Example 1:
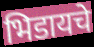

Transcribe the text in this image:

भिडायचे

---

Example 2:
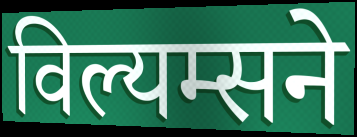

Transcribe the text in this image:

विल्यम्सने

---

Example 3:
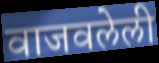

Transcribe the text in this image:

वाजवलेली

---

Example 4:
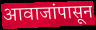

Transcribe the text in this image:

आवाजांपासून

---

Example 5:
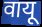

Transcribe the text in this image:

वायू